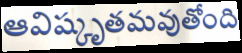
ఆవిష్కృతమవుతోంది